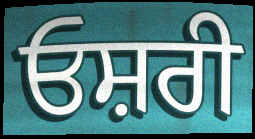
ਓਸ਼ਰੀ